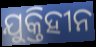
ଯୁକ୍ତିହୀନ